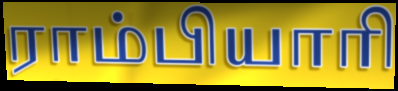
ராம்பியாரி